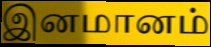
இனமானம்